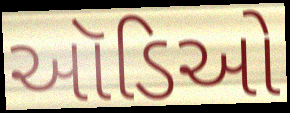
ઑડિઓ